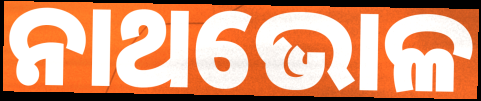
ନାଥଭୋଳ